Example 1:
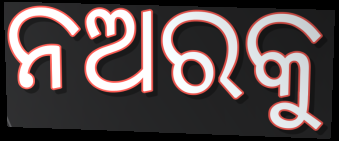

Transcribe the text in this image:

ନଅରକୁ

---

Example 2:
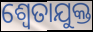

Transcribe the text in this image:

ଶ୍ଵେତାଯୁକ୍ତ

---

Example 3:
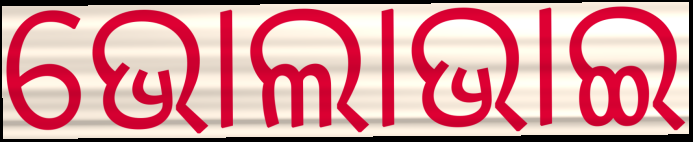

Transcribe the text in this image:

ଭୋଲାଭାଇ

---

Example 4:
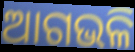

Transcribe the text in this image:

ଆଗଭଳି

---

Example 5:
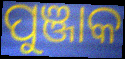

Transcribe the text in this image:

ପୁଞ୍ଜାକ